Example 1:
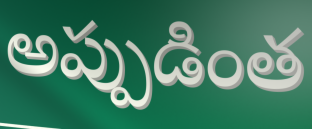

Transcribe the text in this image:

అప్పుడింత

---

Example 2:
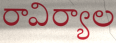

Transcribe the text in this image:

రావిర్యాల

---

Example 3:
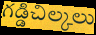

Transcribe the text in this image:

గడ్డిచిల్కలు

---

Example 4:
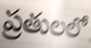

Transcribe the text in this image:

ప్రతులలో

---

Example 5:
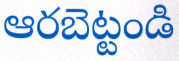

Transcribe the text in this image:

ఆరబెట్టండి